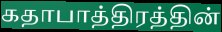
கதாபாத்திரத்தின்